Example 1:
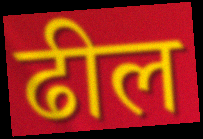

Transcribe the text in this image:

ढील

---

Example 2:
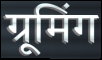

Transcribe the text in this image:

ग्रूमिंग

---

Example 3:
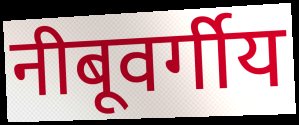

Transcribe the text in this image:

नीबूवर्गीय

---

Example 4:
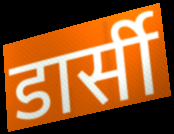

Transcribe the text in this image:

डार्सी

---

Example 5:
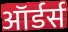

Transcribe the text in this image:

ऑर्डर्स